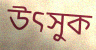
উৎসুক